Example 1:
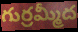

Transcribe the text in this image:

గుర్రమ్మీద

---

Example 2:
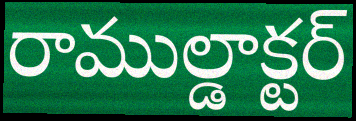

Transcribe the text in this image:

రాముల్డాక్టర్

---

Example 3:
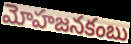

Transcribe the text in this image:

మోహజనకంబు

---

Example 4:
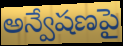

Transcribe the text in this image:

అన్వేషణపై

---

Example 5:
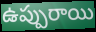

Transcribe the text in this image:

ఉప్పురాయి